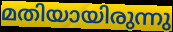
മതിയായിരുന്നു